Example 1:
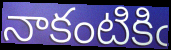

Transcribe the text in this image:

నాకంటికిఁ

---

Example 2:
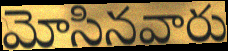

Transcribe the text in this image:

మోసినవారు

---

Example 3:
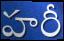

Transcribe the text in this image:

హరీ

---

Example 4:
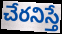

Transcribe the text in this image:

చేరనిస్తే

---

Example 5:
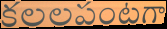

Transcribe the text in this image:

కలలపంటగా